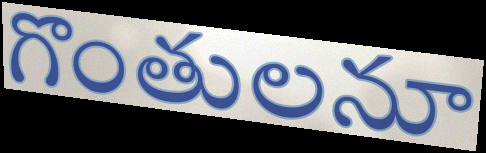
గొంతులనూ